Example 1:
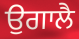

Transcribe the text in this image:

ਉਗਾਲੈ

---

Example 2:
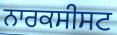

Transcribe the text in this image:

ਨਾਰਕਸੀਸਟ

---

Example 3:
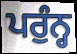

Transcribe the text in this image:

ਪਰੁੰਨ੍ਹ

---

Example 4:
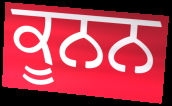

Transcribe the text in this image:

ਕੂਨਨ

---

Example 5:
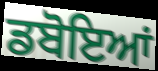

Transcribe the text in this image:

ਡਬੋਇਆਂ